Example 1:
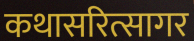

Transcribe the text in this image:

कथासरित्सागर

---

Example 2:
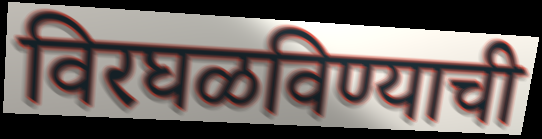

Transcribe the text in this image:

विरघळविण्याची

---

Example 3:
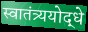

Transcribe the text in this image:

स्वातंत्र्ययोद्धे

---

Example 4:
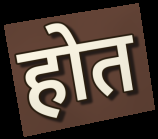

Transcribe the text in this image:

होत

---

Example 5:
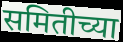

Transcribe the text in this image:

समितीच्‍या